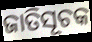
ଜାତିସୂଚକ